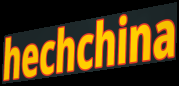
hechchina